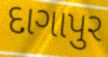
દાગાપુર